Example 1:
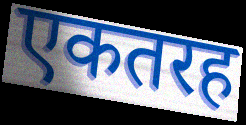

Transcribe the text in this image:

एकतरह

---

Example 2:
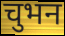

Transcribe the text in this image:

चुभन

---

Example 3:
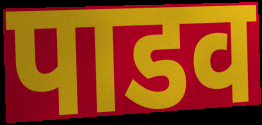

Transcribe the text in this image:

पाडव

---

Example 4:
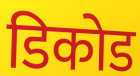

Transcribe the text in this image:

डिकोड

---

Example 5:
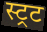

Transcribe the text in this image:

स्ट्रट